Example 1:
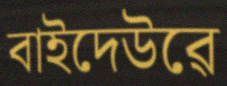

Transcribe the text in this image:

বাইদেউৱে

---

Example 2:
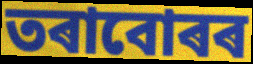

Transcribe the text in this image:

তৰাবোৰৰ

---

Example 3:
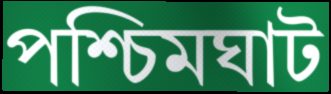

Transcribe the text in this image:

পশ্চিমঘাট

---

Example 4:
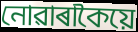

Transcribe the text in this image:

নোৱাৰাকৈয়ে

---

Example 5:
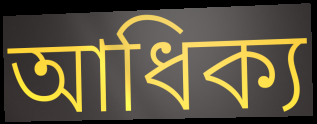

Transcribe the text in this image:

আধিক্য